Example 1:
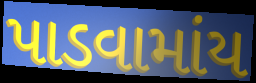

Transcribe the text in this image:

પાડવામાંય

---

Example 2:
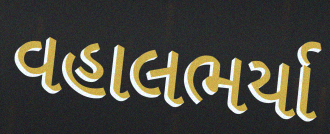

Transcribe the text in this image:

વહાલભર્યા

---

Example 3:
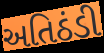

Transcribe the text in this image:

અતિઠંડી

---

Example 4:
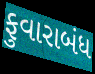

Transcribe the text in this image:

ફુવારાબંધ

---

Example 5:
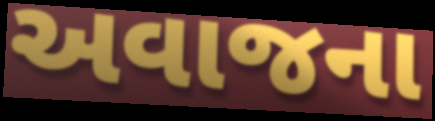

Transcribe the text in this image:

અવાજના